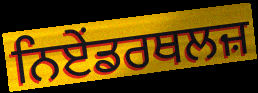
ਨਿਏਂਡਰਥਲਜ਼